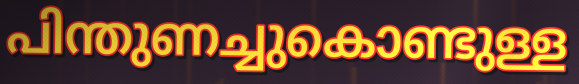
പിന്തുണച്ചുകൊണ്ടുള്ള